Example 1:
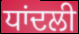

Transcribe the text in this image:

ਧਾਂਦਲੀ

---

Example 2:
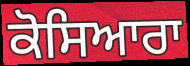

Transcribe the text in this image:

ਕੋਸਿਆਰਾ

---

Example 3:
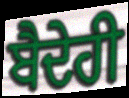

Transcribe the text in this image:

ਬੈਦੇਹੀ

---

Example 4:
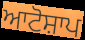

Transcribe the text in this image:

ਆਟੋਸ਼ਾਪ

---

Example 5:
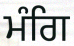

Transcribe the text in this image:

ਮੰਗਿ